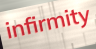
infirmity